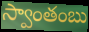
స్వాంతంబు